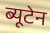
ब्यूटेन